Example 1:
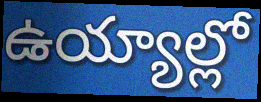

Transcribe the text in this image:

ఉయ్యాల్లో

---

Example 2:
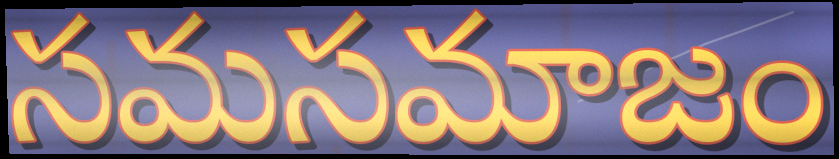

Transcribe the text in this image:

సమసమాజం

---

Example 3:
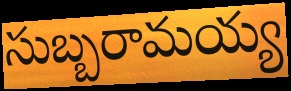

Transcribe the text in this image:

సుబ్బరామయ్య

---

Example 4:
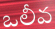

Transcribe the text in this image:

ఒలీవ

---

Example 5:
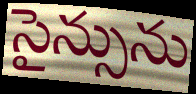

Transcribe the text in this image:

సైన్సును